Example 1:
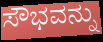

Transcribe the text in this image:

ಸೌಭವನ್ನು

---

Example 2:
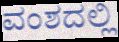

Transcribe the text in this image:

ವಂಶದಲ್ಲಿ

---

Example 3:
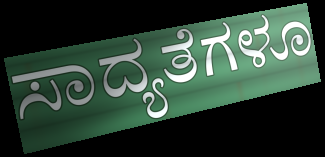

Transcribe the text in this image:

ಸಾದ್ಯತೆಗಳೂ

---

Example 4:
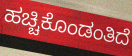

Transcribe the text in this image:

ಹಚ್ಚಿಕೊಂಡಂತಿದೆ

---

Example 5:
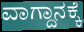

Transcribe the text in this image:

ವಾಗ್ದಾನಕ್ಕೆ